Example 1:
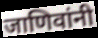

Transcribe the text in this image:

जाणिवांनी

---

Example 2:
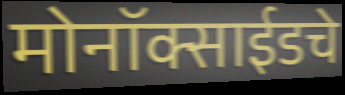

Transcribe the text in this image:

मोनॉक्साईडचे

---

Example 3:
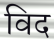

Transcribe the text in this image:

विद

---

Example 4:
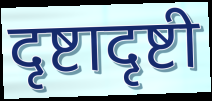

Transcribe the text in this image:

दृष्टादृष्टी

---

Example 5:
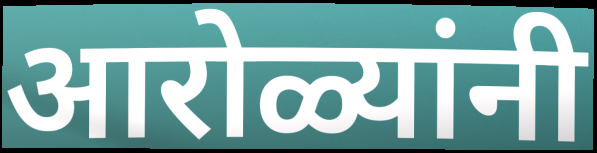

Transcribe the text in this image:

आरोळ्यांनी